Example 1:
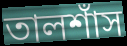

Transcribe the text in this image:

তালশাঁস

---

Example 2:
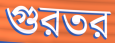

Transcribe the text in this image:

গুরতর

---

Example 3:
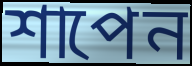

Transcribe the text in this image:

শাপেন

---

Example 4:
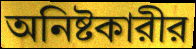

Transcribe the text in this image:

অনিষ্টকারীর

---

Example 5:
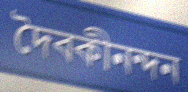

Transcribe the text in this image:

দৈবকীনন্দন